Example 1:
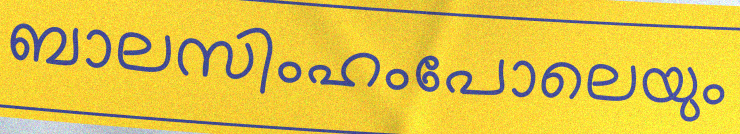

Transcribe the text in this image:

ബാലസിംഹംപോലെയും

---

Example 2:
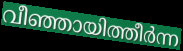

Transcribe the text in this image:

വീഞ്ഞായിത്തീർന്ന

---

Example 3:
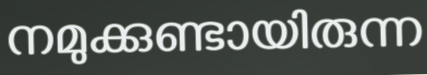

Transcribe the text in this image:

നമുക്കുണ്ടായിരുന്ന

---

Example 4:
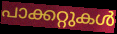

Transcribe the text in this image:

പാക്കറ്റുകൾ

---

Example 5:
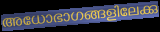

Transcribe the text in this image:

അധോഭാഗങ്ങളിലേക്കു